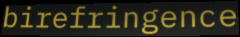
birefringence